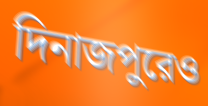
দিনাজপুরেও